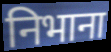
निभाना